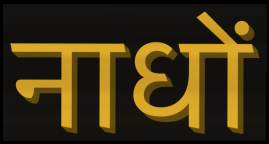
नाधों